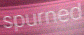
spurned